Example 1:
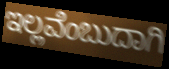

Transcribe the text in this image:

ಇಲ್ಲವೆಂಬುದಾಗಿ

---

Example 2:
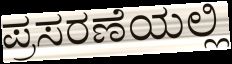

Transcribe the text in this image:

ಪ್ರಸರಣೆಯಲ್ಲಿ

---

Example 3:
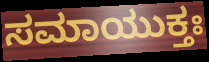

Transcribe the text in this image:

ಸಮಾಯುಕ್ತಃ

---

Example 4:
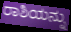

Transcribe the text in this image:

ರಾಶಿಯನ್ನು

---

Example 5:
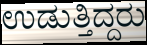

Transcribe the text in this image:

ಉಡುತ್ತಿದ್ದರು